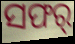
ସଫର୍